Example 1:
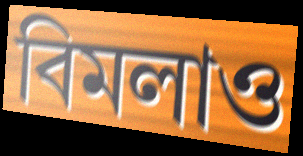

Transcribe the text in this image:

বিমলাও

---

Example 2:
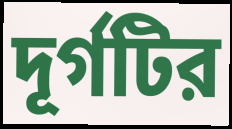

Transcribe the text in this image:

দূর্গটির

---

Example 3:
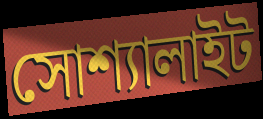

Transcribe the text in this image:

সোশ্যালাইট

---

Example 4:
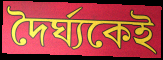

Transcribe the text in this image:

দৈর্ঘ্যকেই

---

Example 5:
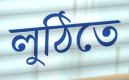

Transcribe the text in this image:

লুঠিতে